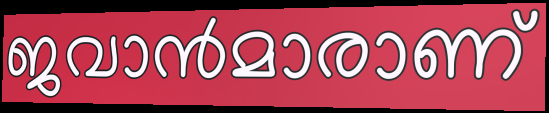
ജവാൻമാരാണ്